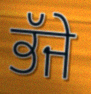
ਭੱਜੇ